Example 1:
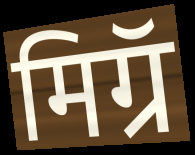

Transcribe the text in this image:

मिग्रॅ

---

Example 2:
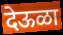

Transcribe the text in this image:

देऊळा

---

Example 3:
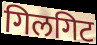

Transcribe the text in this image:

गिलगिट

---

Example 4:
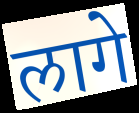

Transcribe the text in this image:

लागे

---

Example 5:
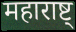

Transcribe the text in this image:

महाराष्ट्